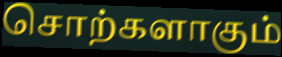
சொற்களாகும்